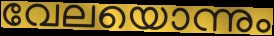
വേലയൊന്നും